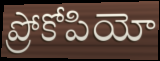
ప్రోకోపియో